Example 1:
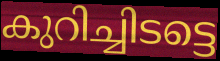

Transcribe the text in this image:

കുറിച്ചിടട്ടെ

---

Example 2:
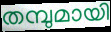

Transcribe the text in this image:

തമ്പുമായി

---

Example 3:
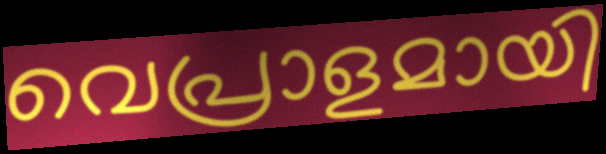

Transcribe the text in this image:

വെപ്രാളമായി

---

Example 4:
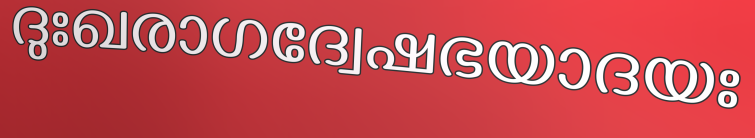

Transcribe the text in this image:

ദുഃഖരാഗദ്വേഷഭയാദയഃ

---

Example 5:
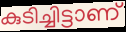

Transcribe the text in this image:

കുടിച്ചിട്ടാണ്